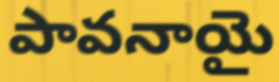
పావనాయై